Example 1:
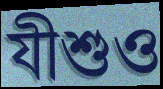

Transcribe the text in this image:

যীশুও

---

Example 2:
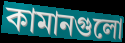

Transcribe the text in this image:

কামানগুলো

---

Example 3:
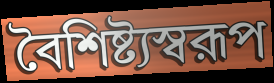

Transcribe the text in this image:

বৈশিষ্ট্যস্বরূপ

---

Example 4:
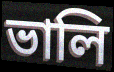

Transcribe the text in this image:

ভালি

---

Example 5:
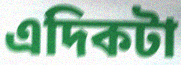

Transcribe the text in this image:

এদিকটা